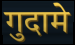
गुदामे